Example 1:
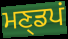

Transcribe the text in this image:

ਮਣ੍ਡਪਂ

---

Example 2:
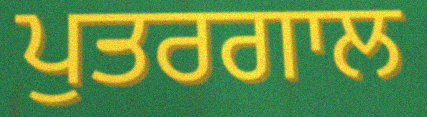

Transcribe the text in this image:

ਪੁਤਰਗਾਲ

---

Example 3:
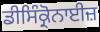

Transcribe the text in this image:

ਡੀਸਿੰਕ੍ਰੋਨਾਈਜ਼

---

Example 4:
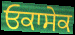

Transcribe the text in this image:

ਓਕਾਸੇਕ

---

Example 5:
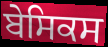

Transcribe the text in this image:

ਬੇਸਿਕਸ